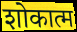
शोकात्म